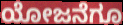
ಯೋಜನೆಗೂ